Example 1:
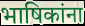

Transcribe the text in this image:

भाषिकांना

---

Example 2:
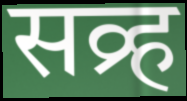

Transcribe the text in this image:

सव्र्ह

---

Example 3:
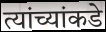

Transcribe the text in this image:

त्यांच्यांकडे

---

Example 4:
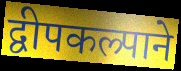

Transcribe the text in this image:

द्वीपकल्पाने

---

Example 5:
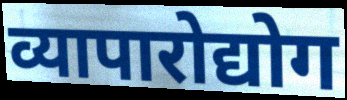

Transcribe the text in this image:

व्यापारोद्योग